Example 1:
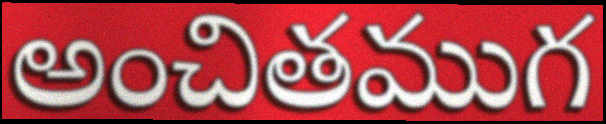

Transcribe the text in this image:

అంచితముగ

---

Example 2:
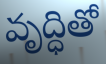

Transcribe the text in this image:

వృద్ధితో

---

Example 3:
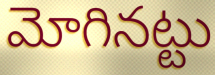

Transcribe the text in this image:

మోగినట్టు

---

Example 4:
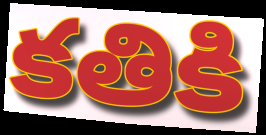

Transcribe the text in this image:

కతికి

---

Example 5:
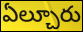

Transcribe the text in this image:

ఏల్చూరు